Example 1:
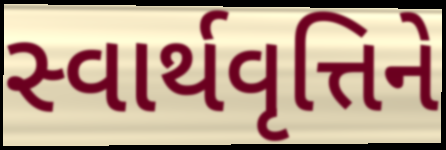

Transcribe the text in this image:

સ્વાર્થવૃત્તિને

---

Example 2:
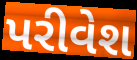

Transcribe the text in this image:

પરીવેશ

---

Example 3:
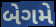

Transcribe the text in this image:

બેગમે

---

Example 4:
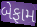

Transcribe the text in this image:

બેફામ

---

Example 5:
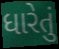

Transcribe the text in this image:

ધારેતું